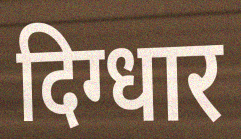
दिग्धार